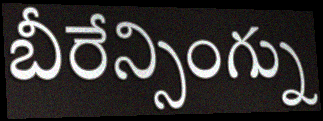
బీరేన్సింగ్ను